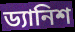
ড্যানিশ